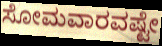
ಸೋಮವಾರವಷ್ಟೇ